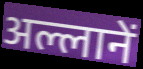
अल्लानें